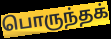
பொருந்தக்